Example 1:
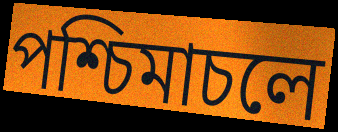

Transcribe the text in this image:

পশ্চিমাচলে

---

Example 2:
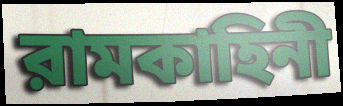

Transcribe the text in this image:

রামকাহিনী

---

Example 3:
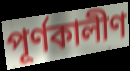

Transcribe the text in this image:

পূর্ণকালীণ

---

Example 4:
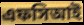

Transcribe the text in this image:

এফসিআই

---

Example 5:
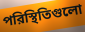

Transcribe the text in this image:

পরিস্থিতিগুলো